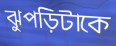
ঝুপড়িটাকে